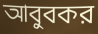
আবুবকর